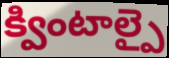
క్వింటాల్పై